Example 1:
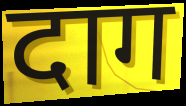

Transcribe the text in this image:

दाग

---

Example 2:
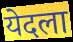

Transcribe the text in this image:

येदला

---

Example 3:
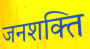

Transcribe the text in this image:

जनशक्ति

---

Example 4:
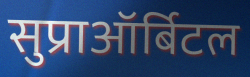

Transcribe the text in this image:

सुप्राऑर्बिटल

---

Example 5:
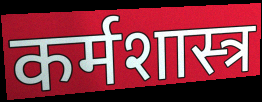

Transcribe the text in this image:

कर्मशास्त्र